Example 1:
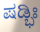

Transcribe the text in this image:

ಷಡ್ಭಿಃ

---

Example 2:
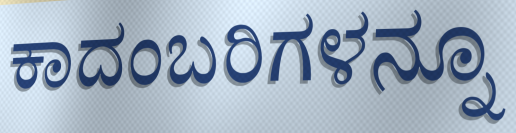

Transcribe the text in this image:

ಕಾದಂಬರಿಗಳನ್ನೂ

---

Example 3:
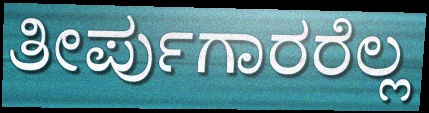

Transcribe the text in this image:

ತೀರ್ಪುಗಾರರೆಲ್ಲ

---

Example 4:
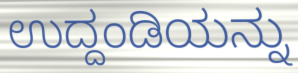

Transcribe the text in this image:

ಉದ್ದಂಡಿಯನ್ನು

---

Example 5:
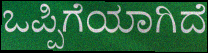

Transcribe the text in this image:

ಒಪ್ಪಿಗೆಯಾಗಿದೆ